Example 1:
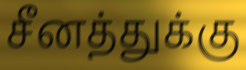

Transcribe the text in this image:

சீனத்துக்கு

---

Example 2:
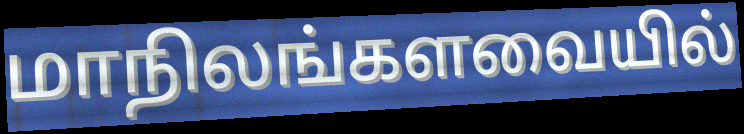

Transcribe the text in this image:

மாநிலங்களவையில்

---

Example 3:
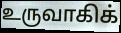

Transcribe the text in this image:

உருவாகிக்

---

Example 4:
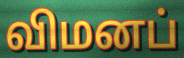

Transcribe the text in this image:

விமனப்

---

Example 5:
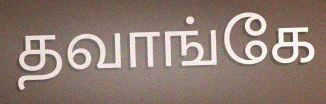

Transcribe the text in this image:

தவாங்கே